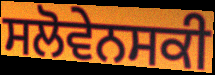
ਸਲੋਵੇਨਸਕੀ